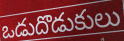
ఒడుదొడుకులు